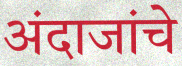
अंदाजांचे